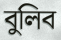
বুলিব